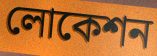
লোকেশন